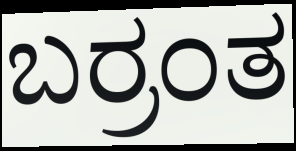
ಬರ್ರಂತ